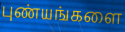
புண்யங்களை